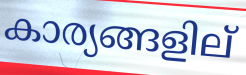
കാര്യങ്ങളില്